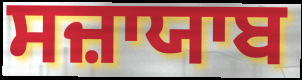
ਸਜ਼ਾਯਾਬ